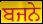
ਬਜਨੇ